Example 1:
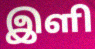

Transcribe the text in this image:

இளி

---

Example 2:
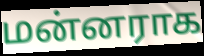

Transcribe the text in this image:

மன்னராக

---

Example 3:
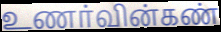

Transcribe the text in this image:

உணர்வின்கண்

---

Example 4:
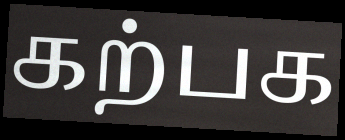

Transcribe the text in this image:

கற்பக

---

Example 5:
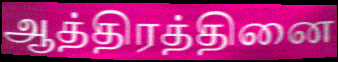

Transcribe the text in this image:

ஆத்திரத்தினை